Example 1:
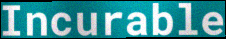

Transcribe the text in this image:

Incurable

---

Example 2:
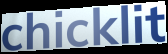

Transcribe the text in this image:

chicklit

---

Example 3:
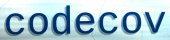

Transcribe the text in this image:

codecov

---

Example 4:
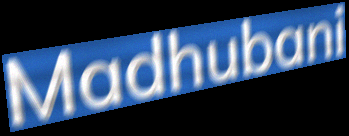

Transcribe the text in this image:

Madhubani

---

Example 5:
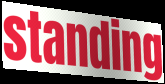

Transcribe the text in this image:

standing